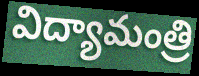
విద్యామంత్రి